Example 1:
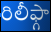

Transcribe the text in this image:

రిలీఫ్గా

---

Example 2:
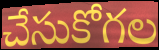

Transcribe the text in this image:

చేసుకోగల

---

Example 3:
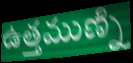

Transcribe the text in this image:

ఉత్తముణ్ని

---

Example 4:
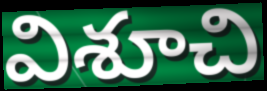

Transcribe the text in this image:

విశూచి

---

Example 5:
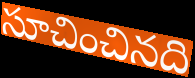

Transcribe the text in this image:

సూచించినది